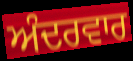
ਅੰਦਰਵਾਰ